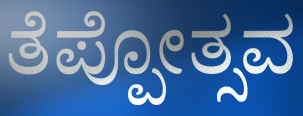
ತೆಪ್ಪೋತ್ಸವ